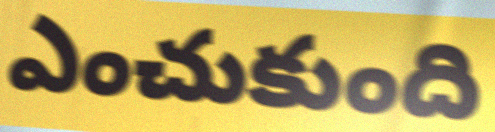
ఎంచుకుంది